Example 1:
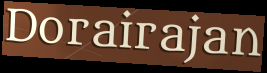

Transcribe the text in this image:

Dorairajan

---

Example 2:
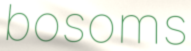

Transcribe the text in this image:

bosoms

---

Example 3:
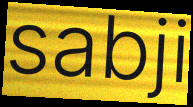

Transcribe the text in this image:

sabji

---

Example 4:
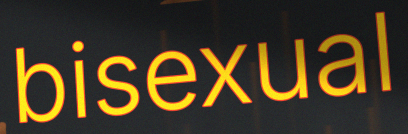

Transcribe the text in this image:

bisexual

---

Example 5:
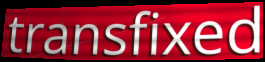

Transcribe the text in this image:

transfixed